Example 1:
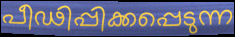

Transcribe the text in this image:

പീഢിപ്പിക്കപ്പെടുന്ന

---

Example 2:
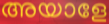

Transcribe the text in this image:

അയാളേ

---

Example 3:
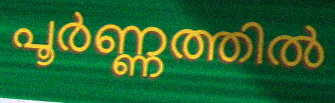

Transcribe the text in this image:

പൂർണ്ണത്തിൽ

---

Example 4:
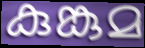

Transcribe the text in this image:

കുങ്കുമ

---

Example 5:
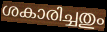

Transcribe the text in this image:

ശകാരിച്ചതും